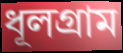
ধূলগ্রাম